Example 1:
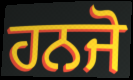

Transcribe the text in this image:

ਹਨਜੋ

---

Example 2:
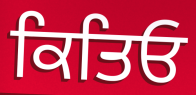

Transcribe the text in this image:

ਕਿਤਿਓ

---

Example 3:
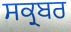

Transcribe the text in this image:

ਸਕ੍ਰਬਰ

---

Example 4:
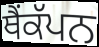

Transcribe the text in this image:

ਥੈਂਕੱਪਨ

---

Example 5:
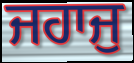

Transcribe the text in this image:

ਜਹਾਜੁ